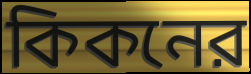
কিকনের